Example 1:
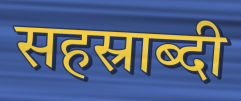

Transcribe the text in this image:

सहस्राब्दी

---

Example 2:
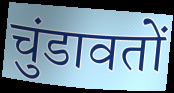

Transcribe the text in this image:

चुंडावतों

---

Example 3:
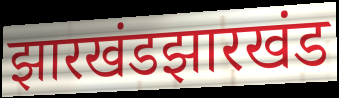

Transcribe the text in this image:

झारखंडझारखंड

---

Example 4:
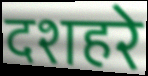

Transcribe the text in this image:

दशहरे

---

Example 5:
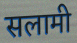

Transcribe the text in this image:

सलामी